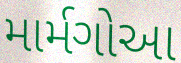
માર્મગોઆ